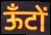
ऊँटों